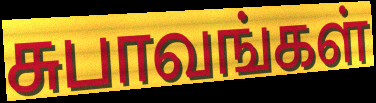
சுபாவங்கள்